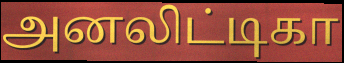
அனலிட்டிகா